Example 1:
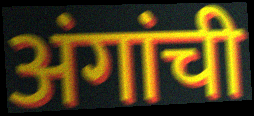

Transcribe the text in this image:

अंगांची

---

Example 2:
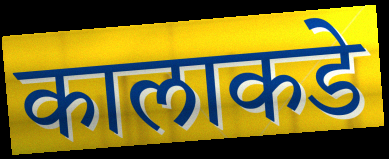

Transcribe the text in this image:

कालाकडे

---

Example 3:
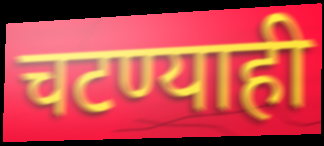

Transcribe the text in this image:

चटण्याही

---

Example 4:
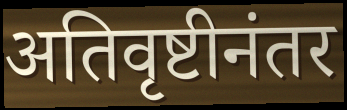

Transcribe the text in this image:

अतिवृष्टीनंतर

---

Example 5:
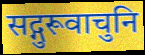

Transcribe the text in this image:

सद्गुरूवाचुनि